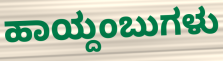
ಹಾಯ್ದಂಬುಗಳು